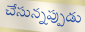
చేసున్నప్పుడు